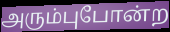
அரும்புபோன்ற